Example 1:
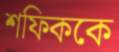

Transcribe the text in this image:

শফিককে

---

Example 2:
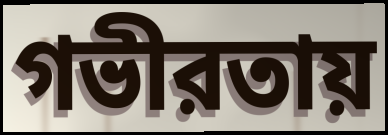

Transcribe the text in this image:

গভীরতায়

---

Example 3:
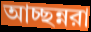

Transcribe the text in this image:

আচ্ছন্নরা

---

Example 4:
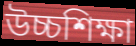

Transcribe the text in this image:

উচ্চশিক্ষা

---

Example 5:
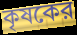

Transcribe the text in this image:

কৃষকের